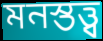
মনস্তত্ত্ব